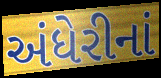
અંધેરીનાં